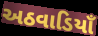
અઠવાડિયાઁ